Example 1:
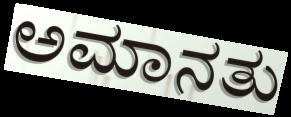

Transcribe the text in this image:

ಅಮಾನತು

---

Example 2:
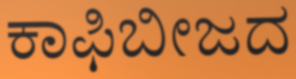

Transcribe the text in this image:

ಕಾಫಿಬೀಜದ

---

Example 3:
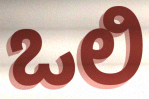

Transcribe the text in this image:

ಒಲಿ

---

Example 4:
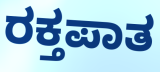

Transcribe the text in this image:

ರಕ್ತಪಾತ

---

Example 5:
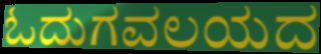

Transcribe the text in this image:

ಓದುಗವಲಯದ